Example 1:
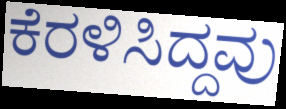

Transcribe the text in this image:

ಕೆರಳಿಸಿದ್ದವು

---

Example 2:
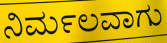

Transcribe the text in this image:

ನಿರ್ಮಲವಾಗು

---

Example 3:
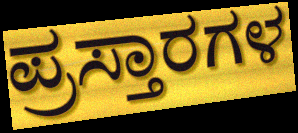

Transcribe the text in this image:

ಪ್ರಸ್ತಾರಗಳ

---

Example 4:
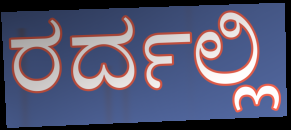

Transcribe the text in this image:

ರರ್ದಲ್ಲಿ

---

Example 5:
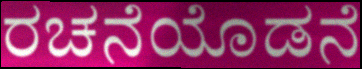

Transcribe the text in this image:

ರಚನೆಯೊಡನೆ